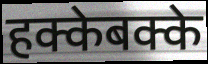
हक्केबक्के